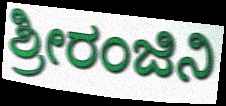
ಶ್ರೀರಂಜಿನಿ